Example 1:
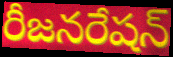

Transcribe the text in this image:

రీజనరేషన్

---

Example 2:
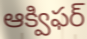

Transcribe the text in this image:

ఆక్విఫర్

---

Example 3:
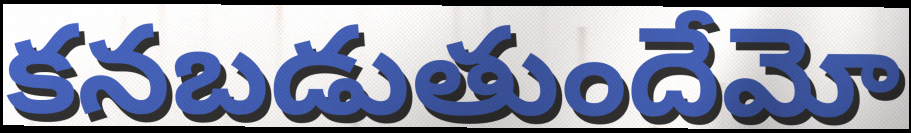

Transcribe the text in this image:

కనబడుతుందేమో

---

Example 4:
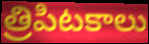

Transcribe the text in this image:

త్రిపిటకాలు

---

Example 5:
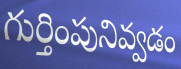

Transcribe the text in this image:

గుర్తింపునివ్వడం